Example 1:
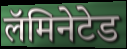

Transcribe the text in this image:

लॅमिनेटेड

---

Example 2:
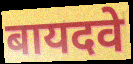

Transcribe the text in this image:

बायदवे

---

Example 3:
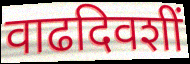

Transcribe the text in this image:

वाढदिवशीं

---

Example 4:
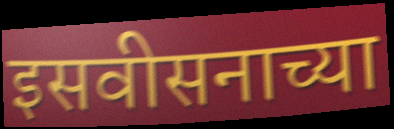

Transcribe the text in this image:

इसवीसनाच्या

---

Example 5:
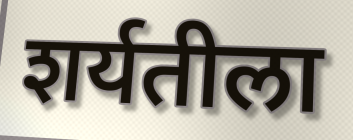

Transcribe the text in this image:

शर्यतीला